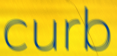
curb